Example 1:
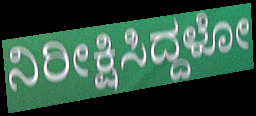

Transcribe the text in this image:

ನಿರೀಕ್ಷಿಸಿದ್ದಳೋ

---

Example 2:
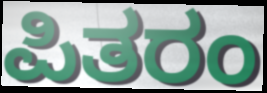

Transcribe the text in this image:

ಪಿತರಂ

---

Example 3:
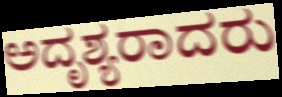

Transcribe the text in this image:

ಅದೃಶ್ಯರಾದರು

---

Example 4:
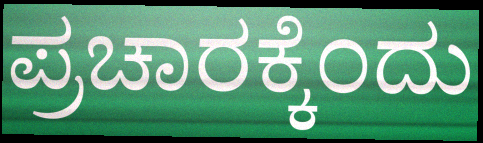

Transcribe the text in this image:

ಪ್ರಚಾರಕ್ಕೆಂದು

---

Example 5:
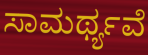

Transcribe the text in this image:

ಸಾಮರ್ಥ್ಯವೆ